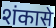
शंकासे